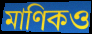
মাণিকও